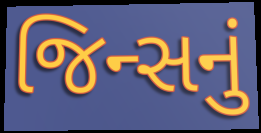
જિન્સનું